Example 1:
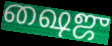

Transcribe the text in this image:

ஷைஜு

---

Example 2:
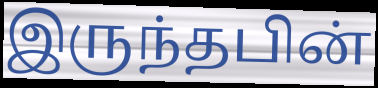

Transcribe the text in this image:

இருந்தபின்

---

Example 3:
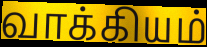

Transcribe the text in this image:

வாக்கியம்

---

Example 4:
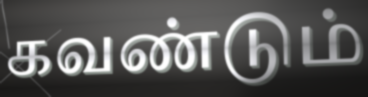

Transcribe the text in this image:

கவண்டும்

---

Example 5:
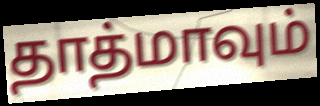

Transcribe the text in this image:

தாத்மாவும்